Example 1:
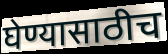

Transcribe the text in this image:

घेण्यासाठीच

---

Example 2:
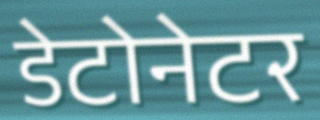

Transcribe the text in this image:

डेटोनेटर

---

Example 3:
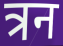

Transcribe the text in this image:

त्रन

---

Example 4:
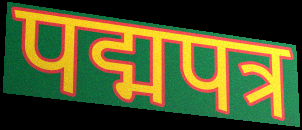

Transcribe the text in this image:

पद्मपत्र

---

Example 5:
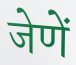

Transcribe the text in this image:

जेणें